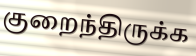
குறைந்திருக்க